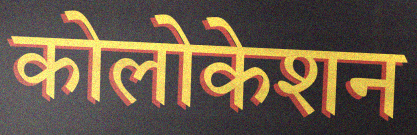
कोलोकेशन